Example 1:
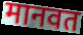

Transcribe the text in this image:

मानवत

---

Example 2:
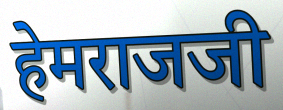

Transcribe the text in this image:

हेमराजजी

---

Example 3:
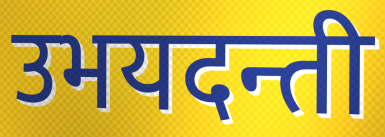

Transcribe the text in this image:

उभयदन्ती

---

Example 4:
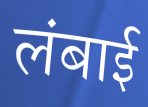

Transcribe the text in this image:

लंबाई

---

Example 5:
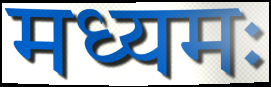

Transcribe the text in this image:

मध्यमः